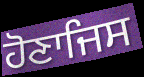
ਹੋਣਾਜਿਸ